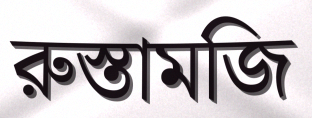
রুস্তামজি